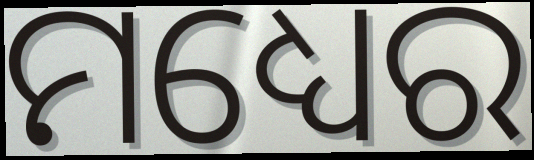
ମଧ୍ୟେର